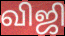
விஜி